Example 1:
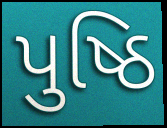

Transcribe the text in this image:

પુષ્ઠિ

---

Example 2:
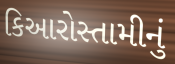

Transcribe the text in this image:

કિઆરોસ્તામીનું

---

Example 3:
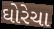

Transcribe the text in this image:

ઘોરેચા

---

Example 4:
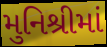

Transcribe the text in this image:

મુનિશ્રીમાં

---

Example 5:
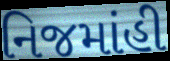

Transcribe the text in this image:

નિજમાંહી